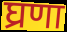
घ्रणा